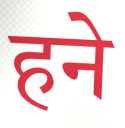
हने